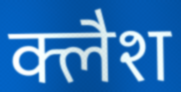
क्लैश